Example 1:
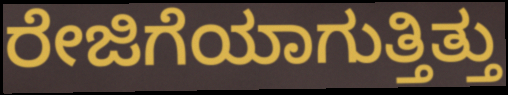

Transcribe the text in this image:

ರೇಜಿಗೆಯಾಗುತ್ತಿತ್ತು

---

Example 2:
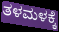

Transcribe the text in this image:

ತಳಮಳಕ್ಕೆ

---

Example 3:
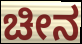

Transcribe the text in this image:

ಚೀನ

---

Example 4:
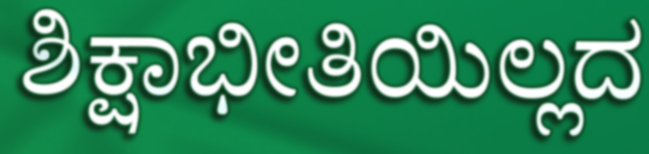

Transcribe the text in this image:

ಶಿಕ್ಷಾಭೀತಿಯಿಲ್ಲದ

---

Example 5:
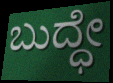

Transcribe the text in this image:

ಬುದ್ಧೇ